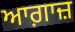
ਆਗ਼ਾਜ਼